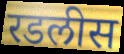
रडलीस